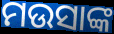
ମଉସାଙ୍କ